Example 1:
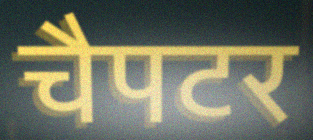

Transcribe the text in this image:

चैपटर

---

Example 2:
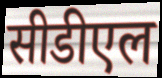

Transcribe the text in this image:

सीडीएल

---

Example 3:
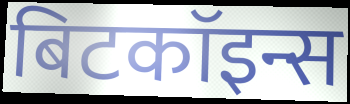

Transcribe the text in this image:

बिटकॉइन्स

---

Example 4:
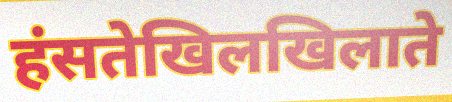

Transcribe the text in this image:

हंसतेखिलखिलाते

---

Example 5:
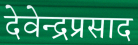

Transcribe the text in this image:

देवेन्द्रप्रसाद